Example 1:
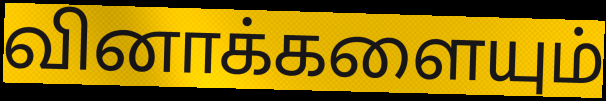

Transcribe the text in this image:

வினாக்களையும்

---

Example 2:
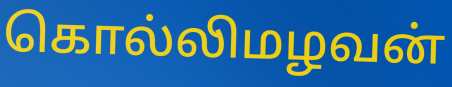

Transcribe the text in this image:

கொல்லிமழவன்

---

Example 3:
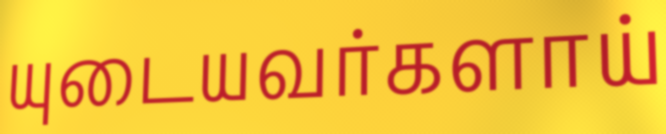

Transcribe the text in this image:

யுடையவர்களாய்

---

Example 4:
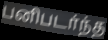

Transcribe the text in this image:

பனிபடர்ந்த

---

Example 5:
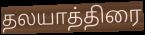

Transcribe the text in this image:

தலயாத்திரை